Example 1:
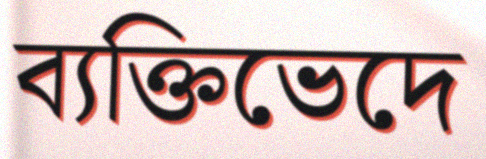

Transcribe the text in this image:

ব্যক্তিভেদে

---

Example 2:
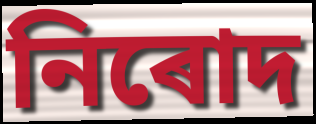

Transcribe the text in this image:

নিৰোদ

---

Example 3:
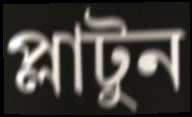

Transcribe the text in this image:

প্লাটুন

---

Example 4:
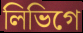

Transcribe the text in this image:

লিভিগে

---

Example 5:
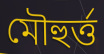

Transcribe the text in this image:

মৌহুৰ্ত্ত